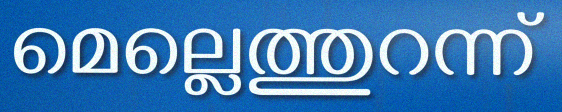
മെല്ലെത്തുറന്ന്